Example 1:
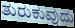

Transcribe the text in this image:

ತುರುಕುವುದು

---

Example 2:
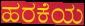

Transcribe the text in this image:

ಹರಕೆಯ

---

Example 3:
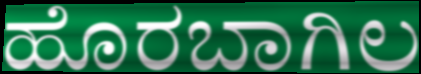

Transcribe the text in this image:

ಹೊರಬಾಗಿಲ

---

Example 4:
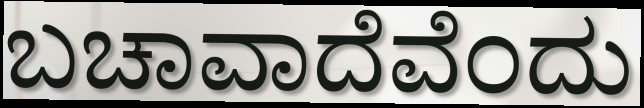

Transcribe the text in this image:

ಬಚಾವಾದೆವೆಂದು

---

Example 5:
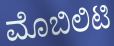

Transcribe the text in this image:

ಮೊಬಿಲಿಟಿ